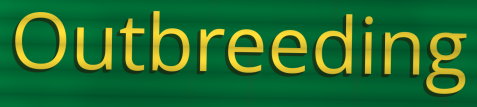
Outbreeding